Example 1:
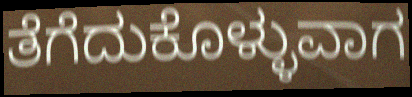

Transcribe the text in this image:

ತೆಗೆದುಕೊಳ್ಳುವಾಗ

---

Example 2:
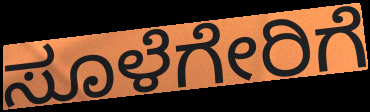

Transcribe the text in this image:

ಸೂಳೆಗೇರಿಗೆ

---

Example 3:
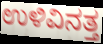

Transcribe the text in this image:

ಉಳಿವಿನತ್ತ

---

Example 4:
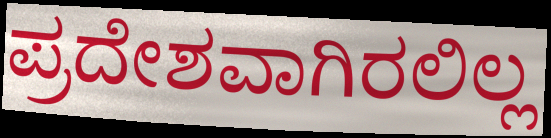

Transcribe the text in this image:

ಪ್ರದೇಶವಾಗಿರಲಿಲ್ಲ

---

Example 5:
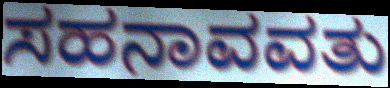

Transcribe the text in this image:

ಸಹನಾವವತು